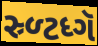
સ્ર્ળ્ટધ્ગૅ